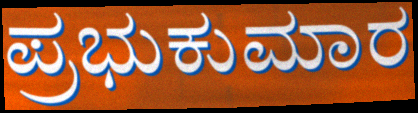
ಪ್ರಭುಕುಮಾರ